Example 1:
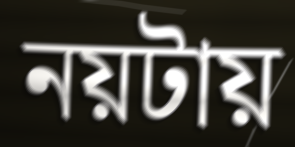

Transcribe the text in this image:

নয়টায়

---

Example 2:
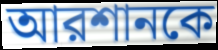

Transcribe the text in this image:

আরশানকে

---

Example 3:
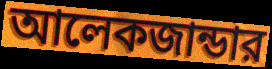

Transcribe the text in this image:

আলেকজান্ডার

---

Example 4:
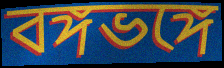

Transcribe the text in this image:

বঙ্গভঙ্গে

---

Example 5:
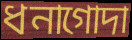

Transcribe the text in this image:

ধনাগোদা